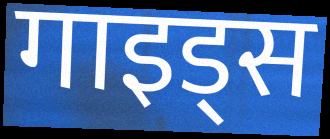
गाइड्स